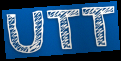
UTT